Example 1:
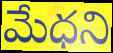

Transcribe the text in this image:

మేధని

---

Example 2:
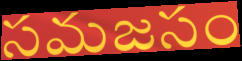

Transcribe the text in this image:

సమజసం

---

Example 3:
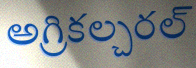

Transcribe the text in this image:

అగ్రికల్చరల్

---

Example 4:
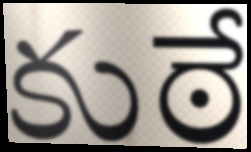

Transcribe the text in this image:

కుఠే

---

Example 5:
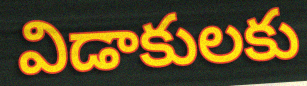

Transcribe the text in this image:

విడాకులకు